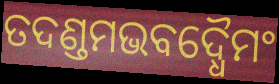
ତଦଣ୍ଡମଭବଦ୍ଧୈମଂ